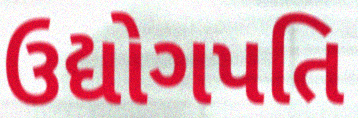
ઉદ્યોગપતિ